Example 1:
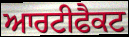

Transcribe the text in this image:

ਆਰਟੀਫੈਕਟ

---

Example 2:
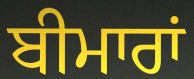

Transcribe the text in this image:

ਬੀਮਾਰਾਂ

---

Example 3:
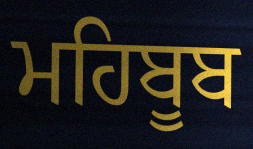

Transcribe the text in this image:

ਮਹਿਬੂਬ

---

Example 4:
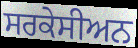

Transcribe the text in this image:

ਸਰਕੇਸੀਅਨ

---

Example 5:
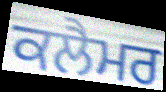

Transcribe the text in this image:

ਕਲੈਮਰ